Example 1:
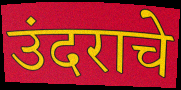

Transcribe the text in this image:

उंदराचे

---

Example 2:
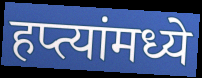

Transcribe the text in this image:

हप्त्यांमध्ये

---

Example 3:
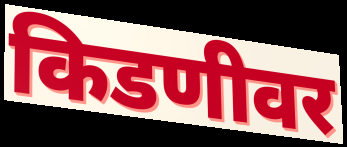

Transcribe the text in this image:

किडणीवर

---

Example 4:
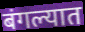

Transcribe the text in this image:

बंगल्यात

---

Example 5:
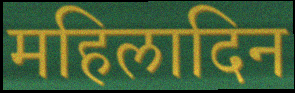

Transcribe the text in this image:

महिलादिन